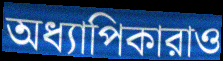
অধ্যাপিকারাও